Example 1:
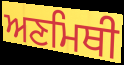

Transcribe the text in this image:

ਅਣਮਿਥੀ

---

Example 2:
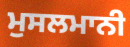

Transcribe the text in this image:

ਮੁਸਲਮਾਨੀ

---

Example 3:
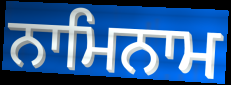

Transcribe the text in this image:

ਨਾਮਿਨਾਮ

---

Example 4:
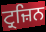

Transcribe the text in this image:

ਟ੍ਰਜ਼ਿਨ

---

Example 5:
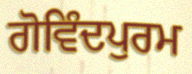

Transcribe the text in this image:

ਗੋਵਿੰਦਪੁਰਮ